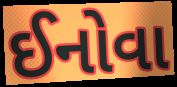
ઈનોવા